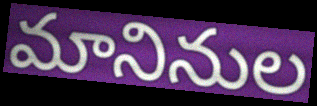
మానినుల